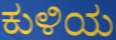
ಕುಳಿಯ